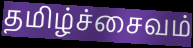
தமிழ்ச்சைவம்